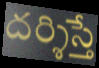
దర్శిస్తే